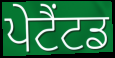
ਪੇਟੈਂਟਡ